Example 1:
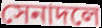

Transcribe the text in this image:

সেনাদলে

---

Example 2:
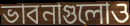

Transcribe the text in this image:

ভাবনাগুলোও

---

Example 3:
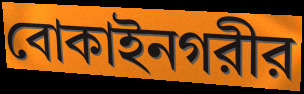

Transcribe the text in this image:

বোকাইনগরীর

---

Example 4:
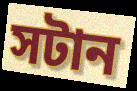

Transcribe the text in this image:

সটান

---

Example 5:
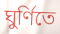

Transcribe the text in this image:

ঘুর্ণিতে